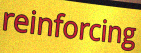
reinforcing